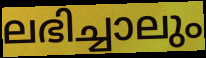
ലഭിച്ചാലും